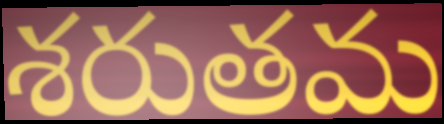
శరుతమ